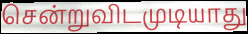
சென்றுவிடமுடியாது